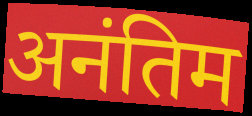
अनंतिम